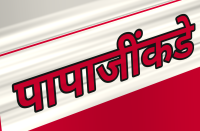
पापाजींकडे